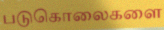
படுகொலைகளை